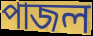
পাজল